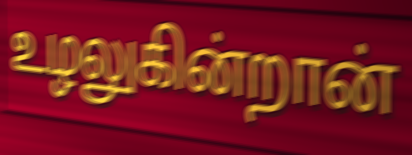
உழலுகின்றான்